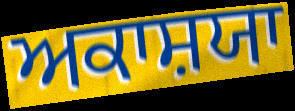
ਅਕਾਸ਼ਯਾ